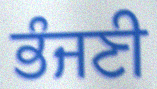
ਭੰਜਣੀ